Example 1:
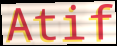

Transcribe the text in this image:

Atif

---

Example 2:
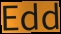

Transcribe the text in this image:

Edd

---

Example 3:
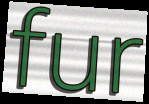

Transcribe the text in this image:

fur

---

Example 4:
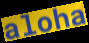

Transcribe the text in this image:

aloha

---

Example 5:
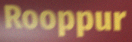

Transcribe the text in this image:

Rooppur